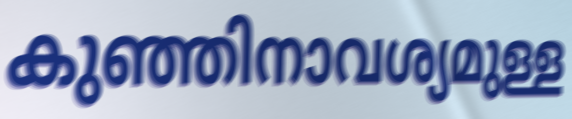
കുഞ്ഞിനാവശ്യമുള്ള